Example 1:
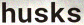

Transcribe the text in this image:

husks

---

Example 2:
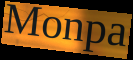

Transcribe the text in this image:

Monpa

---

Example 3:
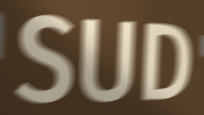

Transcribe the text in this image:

SUD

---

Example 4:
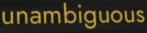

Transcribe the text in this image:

unambiguous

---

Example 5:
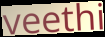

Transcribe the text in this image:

veethi